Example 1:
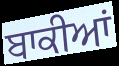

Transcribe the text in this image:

ਬਾਕੀਆਂ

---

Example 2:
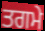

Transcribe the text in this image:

ਤਗਮੇ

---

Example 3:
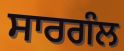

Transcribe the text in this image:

ਸਾਰਗੰਲ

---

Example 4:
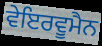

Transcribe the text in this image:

ਵੇਇਰਵੂਮੈਨ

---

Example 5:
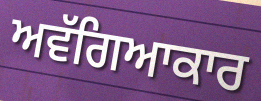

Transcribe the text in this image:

ਅਵੱਗਿਆਕਾਰ